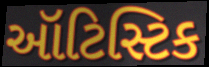
ઑટિસ્ટિક